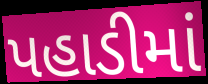
પહાડીમાં